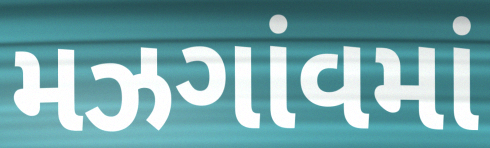
મઝગાંવમાં